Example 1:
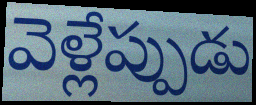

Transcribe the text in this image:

వెళ్లేప్పుడు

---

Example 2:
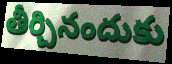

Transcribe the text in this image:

తీర్చినందుకు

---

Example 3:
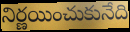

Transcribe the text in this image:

నిర్ణయించుకునేది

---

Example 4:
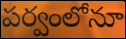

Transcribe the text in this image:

పర్వంలోనూ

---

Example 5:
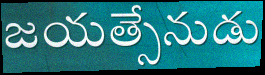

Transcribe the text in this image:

జయత్సేనుడు